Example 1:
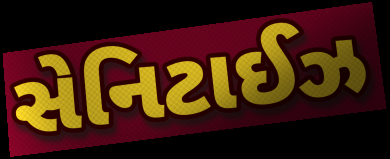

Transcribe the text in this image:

સેનિટાઈઝ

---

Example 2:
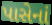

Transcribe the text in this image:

પાસેનાં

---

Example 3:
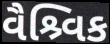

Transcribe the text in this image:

વૈશ્ર્વિક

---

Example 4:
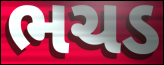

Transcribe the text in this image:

ભચડ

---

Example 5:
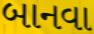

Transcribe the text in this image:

બાનવા